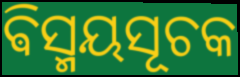
ଵିସ୍ମୟସୂଚକ